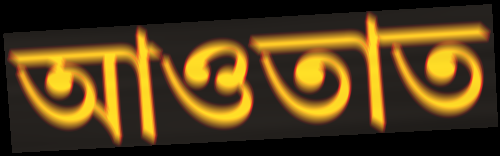
আওতাত